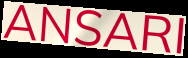
ANSARI